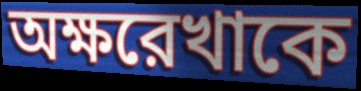
অক্ষরেখাকে